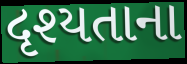
દૃશ્યતાના